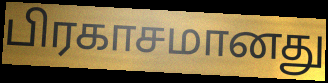
பிரகாசமானது